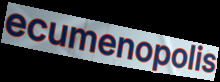
ecumenopolis